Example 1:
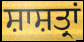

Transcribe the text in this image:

ਸ਼ਾਸ਼ਤ੍ਰਾਂ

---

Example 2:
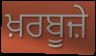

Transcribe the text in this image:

ਖ਼ਰਬੂਜ਼ੇ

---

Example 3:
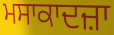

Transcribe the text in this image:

ਮਸਾਕਾਦਜ਼ਾ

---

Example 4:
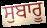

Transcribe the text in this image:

ਸੁਬਾਰੂ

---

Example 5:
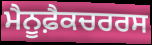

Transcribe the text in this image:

ਮੈਨੂਫ਼ੈਕਚਰਰਸ